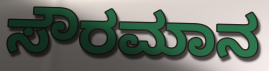
ಸೌರಮಾನ